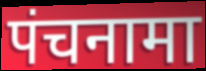
पंचनामा